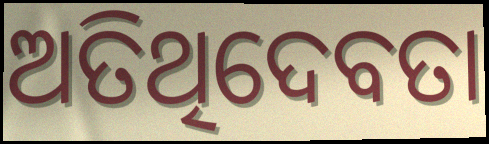
ଅତିଥିଦେବତା